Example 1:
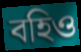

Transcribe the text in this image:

বহিও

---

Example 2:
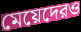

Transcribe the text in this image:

মেয়েদেরও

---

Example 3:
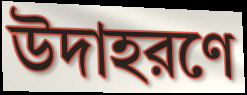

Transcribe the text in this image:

উদাহরণে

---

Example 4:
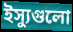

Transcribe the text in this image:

ইস্যুগুলো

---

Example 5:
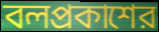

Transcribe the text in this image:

বলপ্রকাশের